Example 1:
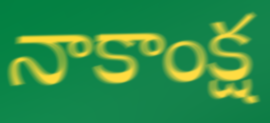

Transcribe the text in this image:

నాకాంక్ష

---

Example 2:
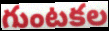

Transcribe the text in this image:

గుంటకల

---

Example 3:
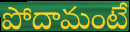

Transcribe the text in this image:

పోదామంటే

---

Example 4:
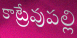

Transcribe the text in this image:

కాట్రేవుపల్లి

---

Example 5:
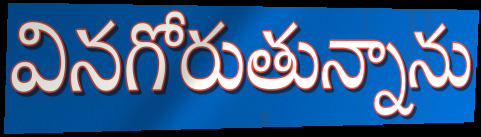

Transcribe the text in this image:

వినగోరుతున్నాను